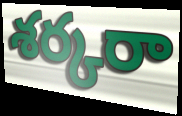
శర్కరా